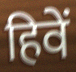
हिवें